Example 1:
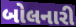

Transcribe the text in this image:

બોલનારી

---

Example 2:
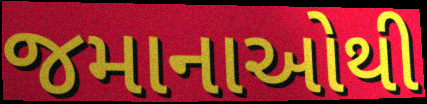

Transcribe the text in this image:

જમાનાઓથી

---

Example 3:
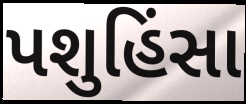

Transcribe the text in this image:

પશુહિંસા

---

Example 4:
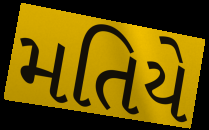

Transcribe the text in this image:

મતિયે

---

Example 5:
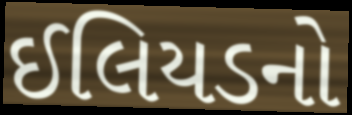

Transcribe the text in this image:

ઈલિયડનો